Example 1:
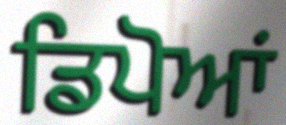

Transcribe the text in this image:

ਡਿਪੋਆਂ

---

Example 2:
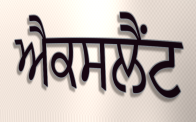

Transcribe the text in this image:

ਐਕਸਲੈਂਟ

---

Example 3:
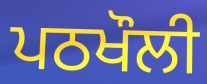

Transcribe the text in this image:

ਪਠਖੌਲੀ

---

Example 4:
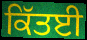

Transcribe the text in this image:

ਕਿੱਤਈ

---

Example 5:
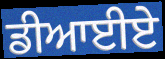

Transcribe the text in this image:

ਡੀਆਈਏ